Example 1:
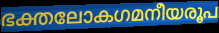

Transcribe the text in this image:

ഭക്തലോകഗമനീയരൂപ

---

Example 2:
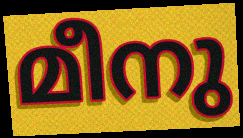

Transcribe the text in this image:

മീനു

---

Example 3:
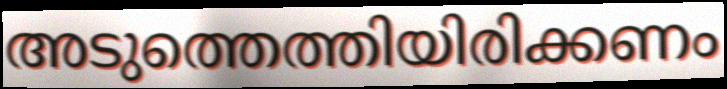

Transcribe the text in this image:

അടുത്തെത്തിയിരിക്കണം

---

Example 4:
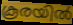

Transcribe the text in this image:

കൂരയിൽ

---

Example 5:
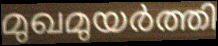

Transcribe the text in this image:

മുഖമുയർത്തി